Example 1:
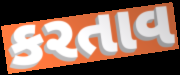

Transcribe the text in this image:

કરતાવ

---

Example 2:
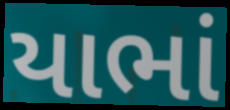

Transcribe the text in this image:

યાભાં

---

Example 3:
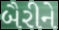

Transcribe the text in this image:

બૈરીને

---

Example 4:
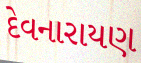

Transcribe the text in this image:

દેવનારાયણ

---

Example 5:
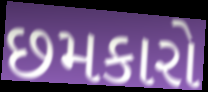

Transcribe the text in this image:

છમકારો